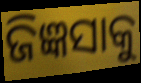
ଜିଜ୍ଞସାକୁ